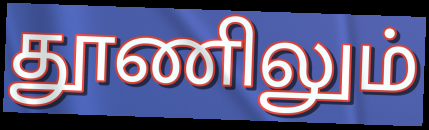
தூணிலும்